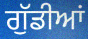
ਗੁੱਡੀਆਂ